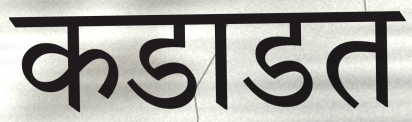
कडाडत